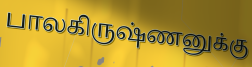
பாலகிருஷ்ணனுக்கு